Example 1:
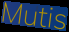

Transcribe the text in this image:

Mutis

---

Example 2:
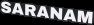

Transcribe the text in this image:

SARANAM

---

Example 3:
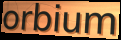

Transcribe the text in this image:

orbium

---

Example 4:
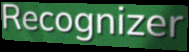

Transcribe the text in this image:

Recognizer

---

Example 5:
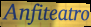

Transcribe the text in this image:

Anfiteatro